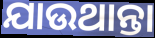
ଯାଉଥାନ୍ତା